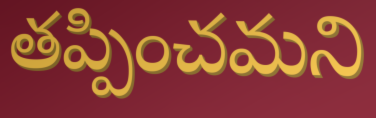
తప్పించమని